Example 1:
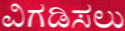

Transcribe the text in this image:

ವಿಗಡಿಸಲು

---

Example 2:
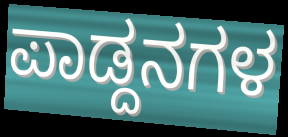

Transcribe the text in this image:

ಪಾಡ್ದನಗಳ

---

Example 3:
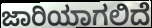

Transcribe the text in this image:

ಜಾರಿಯಾಗಲಿದೆ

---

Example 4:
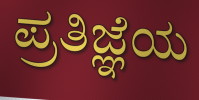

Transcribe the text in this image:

ಪ್ರತಿಜ್ಞೆಯ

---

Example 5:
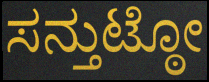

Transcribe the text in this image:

ಸನ್ತುಟ್ಠೋ